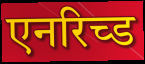
एनरिच्ड